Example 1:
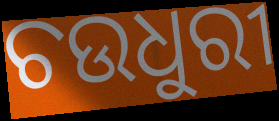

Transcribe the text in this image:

ଚଉଧୁରୀ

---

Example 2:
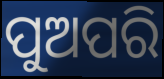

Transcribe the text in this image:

ପୁଅପରି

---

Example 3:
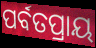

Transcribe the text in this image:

ପର୍ବତପ୍ରାୟ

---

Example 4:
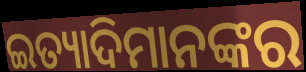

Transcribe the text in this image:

ଇତ୍ୟାଦିମାନଙ୍କର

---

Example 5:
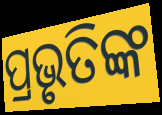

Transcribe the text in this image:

ପ୍ରଭୃତିଙ୍କ